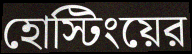
হোস্টিংয়ের